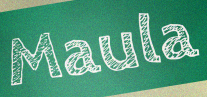
Maula